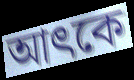
আৎকে